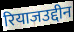
रियाजउद्दीन